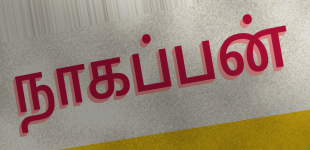
நாகப்பன்